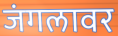
जंगलावर